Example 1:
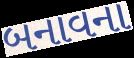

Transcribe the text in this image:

બનાવના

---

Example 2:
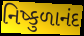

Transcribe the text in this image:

નિષ્કુળાનંદ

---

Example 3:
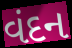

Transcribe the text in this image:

વંદન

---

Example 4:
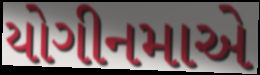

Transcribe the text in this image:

યોગીનમાએ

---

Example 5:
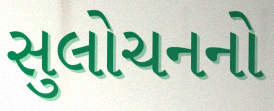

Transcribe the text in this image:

સુલોચનનો